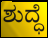
ಶುದ್ಧೆ